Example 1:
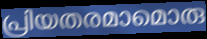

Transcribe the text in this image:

പ്രിയതരമാമൊരു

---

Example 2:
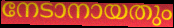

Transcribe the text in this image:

നേടാനായതും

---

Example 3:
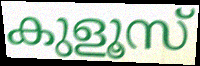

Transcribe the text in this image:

കുളൂസ്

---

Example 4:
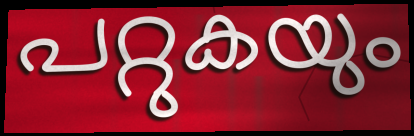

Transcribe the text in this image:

പറ്റുകയും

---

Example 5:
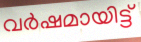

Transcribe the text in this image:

വർഷമായിട്ട്